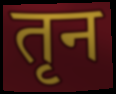
तृन